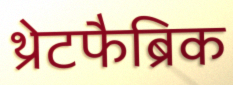
थ्रेटफैब्रिक